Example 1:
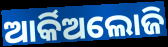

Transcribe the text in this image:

ଆର୍କିଅଲୋଜି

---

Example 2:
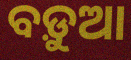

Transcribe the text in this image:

ବଡ଼ୁଆ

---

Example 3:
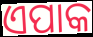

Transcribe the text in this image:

ଏପାକ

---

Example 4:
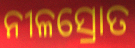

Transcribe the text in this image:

ନୀଳସ୍ରୋତ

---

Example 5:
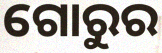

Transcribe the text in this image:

ଗୋରୁର